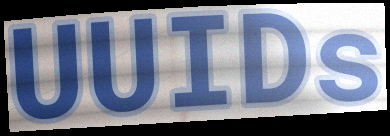
UUIDs